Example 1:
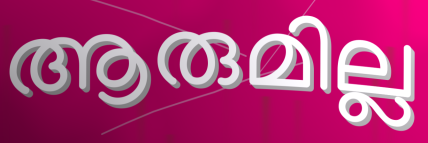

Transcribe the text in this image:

ആരുമില്ല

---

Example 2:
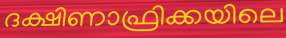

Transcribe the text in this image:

ദക്ഷിണാഫ്രിക്കയിലെ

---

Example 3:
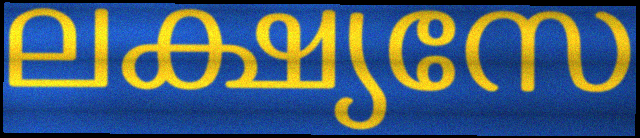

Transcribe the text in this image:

ലക്ഷ്യസേ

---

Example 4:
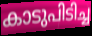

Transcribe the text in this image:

കാടുപിടിച്ച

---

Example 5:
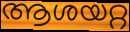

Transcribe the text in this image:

ആശയറ്റ